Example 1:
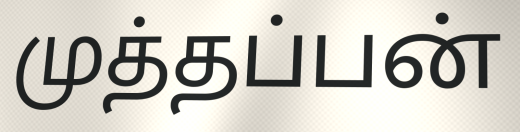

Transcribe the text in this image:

முத்தப்பன்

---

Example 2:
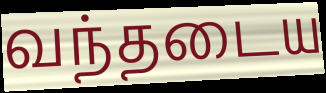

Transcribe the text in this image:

வந்தடைய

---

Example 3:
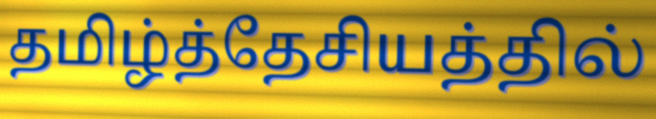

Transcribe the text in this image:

தமிழ்த்தேசியத்தில்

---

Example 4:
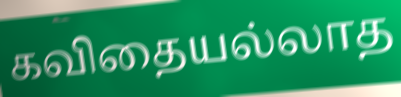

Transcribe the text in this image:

கவிதையல்லாத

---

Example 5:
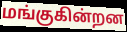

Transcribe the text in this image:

மங்குகின்றன